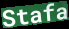
Stafa